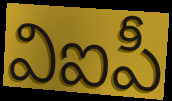
విఐపీ